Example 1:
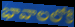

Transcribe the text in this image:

భావాలలోకి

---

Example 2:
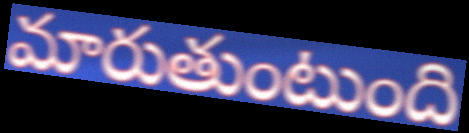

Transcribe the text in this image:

మారుతుంటుంది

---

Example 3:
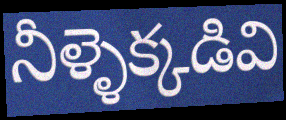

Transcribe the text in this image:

నీళ్ళెక్కడివి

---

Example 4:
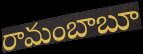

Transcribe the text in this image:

రామంబాబూ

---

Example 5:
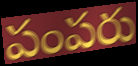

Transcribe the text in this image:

పంపరు